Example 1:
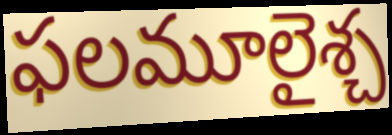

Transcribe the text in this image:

ఫలమూలైశ్చ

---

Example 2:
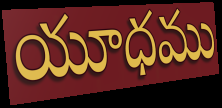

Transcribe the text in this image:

యూధము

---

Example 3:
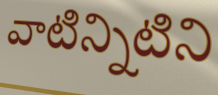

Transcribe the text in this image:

వాటిన్నిటిని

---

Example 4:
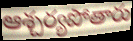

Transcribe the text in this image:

ఆశ్చర్యపోతారు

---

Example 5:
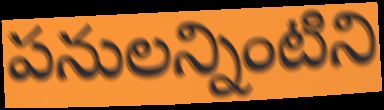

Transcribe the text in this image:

పనులన్నింటిని